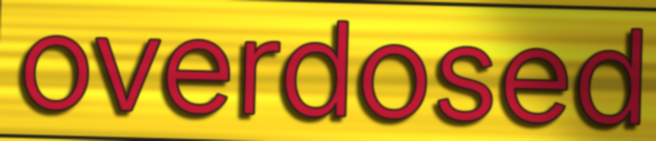
overdosed